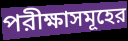
পরীক্ষাসমূহের